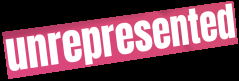
unrepresented